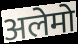
अलेमो